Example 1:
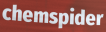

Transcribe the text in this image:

chemspider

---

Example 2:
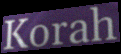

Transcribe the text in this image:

Korah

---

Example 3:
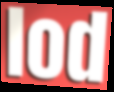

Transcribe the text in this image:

lod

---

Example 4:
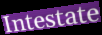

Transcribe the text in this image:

Intestate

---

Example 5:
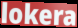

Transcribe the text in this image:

lokera